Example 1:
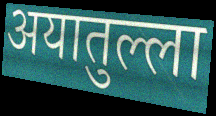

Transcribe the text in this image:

अयातुल्ला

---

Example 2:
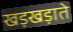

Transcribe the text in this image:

खड़खड़ाते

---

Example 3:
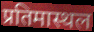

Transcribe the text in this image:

प्रतिमास्थल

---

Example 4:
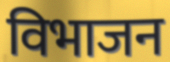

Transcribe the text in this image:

विभाजन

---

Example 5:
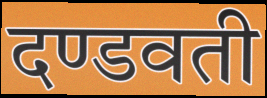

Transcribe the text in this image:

दण्डवती